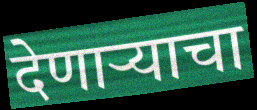
देणार्‍याचा